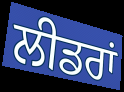
ਲੀਡਰਾਂ